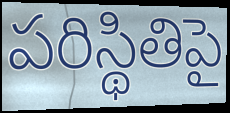
పరిస్థితిపై